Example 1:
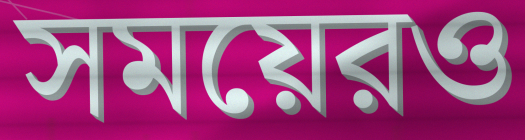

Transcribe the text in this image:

সময়েরও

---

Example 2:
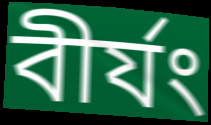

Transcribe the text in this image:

বীর্যং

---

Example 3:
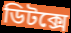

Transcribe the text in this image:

ডিটক্সে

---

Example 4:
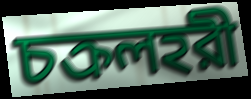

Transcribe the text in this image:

চক্রলহরী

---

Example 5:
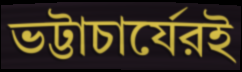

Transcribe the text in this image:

ভট্টাচার্যেরই